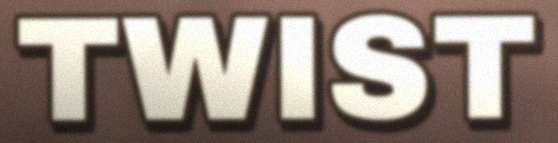
TWIST